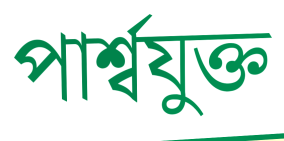
পার্শ্বযুক্ত